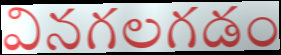
వినగలగడం